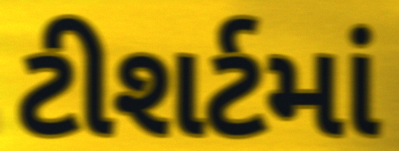
ટીશર્ટમાં